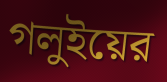
গলুইয়ের